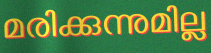
മരിക്കുന്നുമില്ല